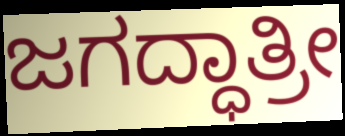
ಜಗದ್ಧಾತ್ರೀ